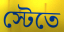
স্টেতে